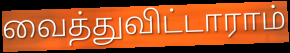
வைத்துவிட்டாராம்